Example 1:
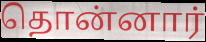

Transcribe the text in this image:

தொன்னார்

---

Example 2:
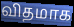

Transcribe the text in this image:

விதமாக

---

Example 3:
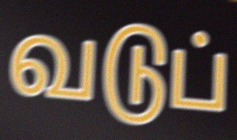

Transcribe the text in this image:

வடுப்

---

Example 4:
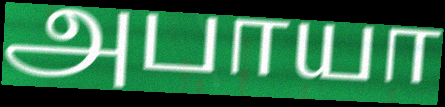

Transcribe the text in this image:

அபாயா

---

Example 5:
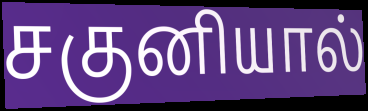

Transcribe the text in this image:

சகுனியால்